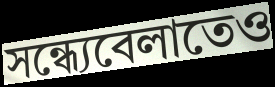
সন্ধ্যেবেলাতেও